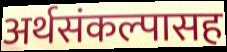
अर्थसंकल्पासह